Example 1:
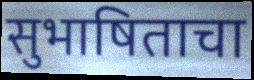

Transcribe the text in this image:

सुभाषिताचा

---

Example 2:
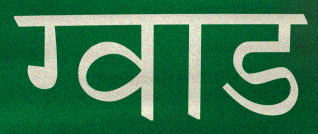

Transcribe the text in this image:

ग्वाड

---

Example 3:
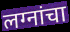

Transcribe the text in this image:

लग्नांचा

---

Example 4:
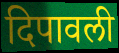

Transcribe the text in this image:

दिपावली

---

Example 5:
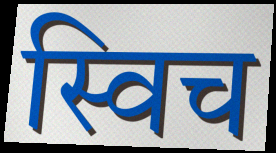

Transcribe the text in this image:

स्विच